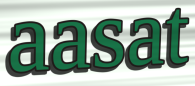
aasat